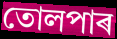
তোলপাৰ